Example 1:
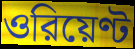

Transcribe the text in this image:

ওরিয়েণ্ট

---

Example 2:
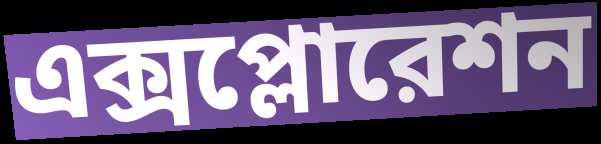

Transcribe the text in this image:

এক্সপ্লোরেশন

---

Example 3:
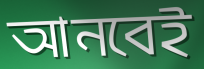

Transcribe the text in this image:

আনবেই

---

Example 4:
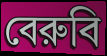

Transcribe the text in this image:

বেরুবি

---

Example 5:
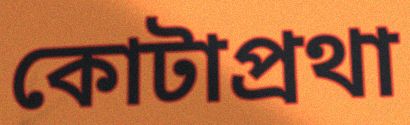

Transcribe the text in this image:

কোটাপ্রথা